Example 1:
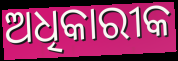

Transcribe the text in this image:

ଅଧିକାରୀକ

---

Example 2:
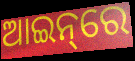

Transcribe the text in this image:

ଆଇନ୍‌ରେ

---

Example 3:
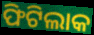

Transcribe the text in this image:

ଫିଟିଲାକ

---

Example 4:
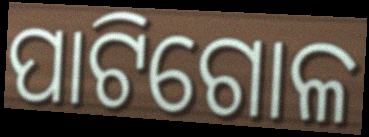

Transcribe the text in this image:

ପାଟିଗୋଳ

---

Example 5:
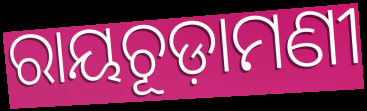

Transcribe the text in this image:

ରାୟଚୂଡ଼ାମଣୀ